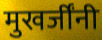
मुखर्जींनी